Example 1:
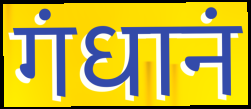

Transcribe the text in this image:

गंधानं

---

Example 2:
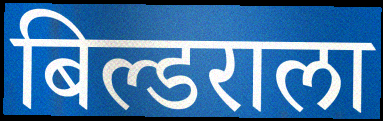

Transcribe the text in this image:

बिल्डराला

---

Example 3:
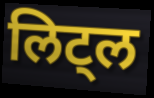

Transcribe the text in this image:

लिट्ल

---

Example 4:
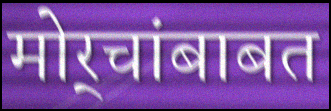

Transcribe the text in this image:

मोर्चांबाबत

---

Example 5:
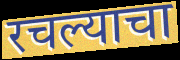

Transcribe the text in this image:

रचल्याचा